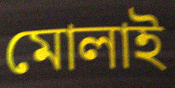
মোলাই